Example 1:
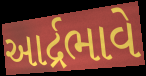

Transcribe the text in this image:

આર્દ્રભાવે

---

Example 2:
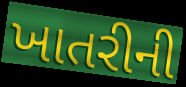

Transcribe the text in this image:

ખાતરીની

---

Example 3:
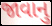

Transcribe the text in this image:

જાવાનુ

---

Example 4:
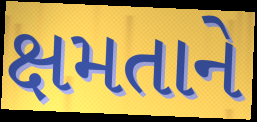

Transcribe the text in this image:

ક્ષમતાને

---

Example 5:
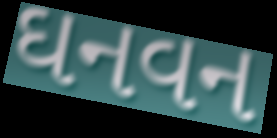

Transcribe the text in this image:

ઘનવન